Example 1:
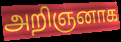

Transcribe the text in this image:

அறிஞனாக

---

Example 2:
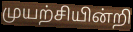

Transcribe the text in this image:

முயற்சியின்றி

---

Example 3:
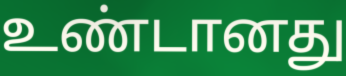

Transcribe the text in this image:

உண்டானது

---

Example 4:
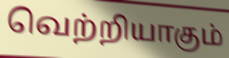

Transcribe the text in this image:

வெற்றியாகும்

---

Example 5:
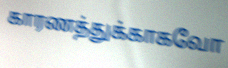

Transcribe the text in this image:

காரணத்துக்காகவோ